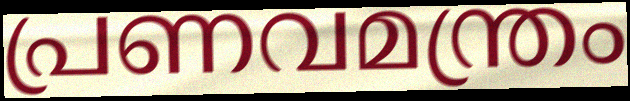
പ്രണവമന്ത്രം